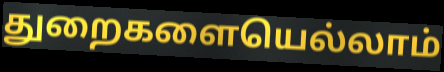
துறைகளையெல்லாம்